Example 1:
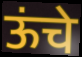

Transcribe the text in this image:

ऊंचे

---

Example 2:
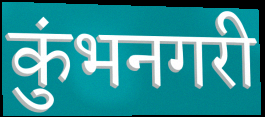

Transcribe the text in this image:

कुंभनगरी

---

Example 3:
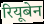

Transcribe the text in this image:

रियूबेन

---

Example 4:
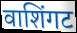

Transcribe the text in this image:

वाशिंगट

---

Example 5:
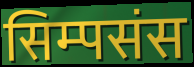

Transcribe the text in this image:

सिम्पसंस